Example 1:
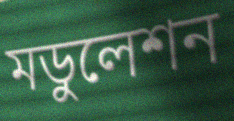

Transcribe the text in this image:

মডুলেশন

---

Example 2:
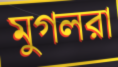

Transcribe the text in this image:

মুগলরা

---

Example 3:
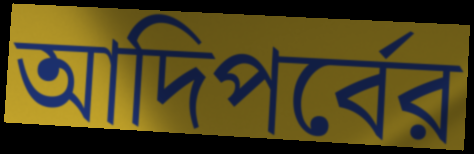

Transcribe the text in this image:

আদিপর্বের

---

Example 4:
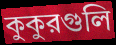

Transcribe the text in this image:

কুকুরগুলি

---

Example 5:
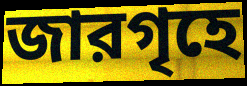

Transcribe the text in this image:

জারগৃহে